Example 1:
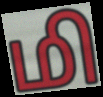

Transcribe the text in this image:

மி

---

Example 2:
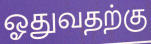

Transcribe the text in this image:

ஓதுவதற்கு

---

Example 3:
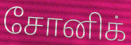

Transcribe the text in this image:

சோனிக்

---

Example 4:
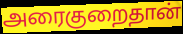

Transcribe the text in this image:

அரைகுறைதான்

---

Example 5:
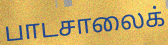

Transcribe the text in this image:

பாடசாலைக்